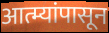
आत्म्यांपासून